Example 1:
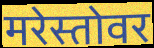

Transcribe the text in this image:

मरेस्तोवर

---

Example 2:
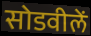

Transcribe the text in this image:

सोडवीलें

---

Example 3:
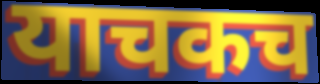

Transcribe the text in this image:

याचकच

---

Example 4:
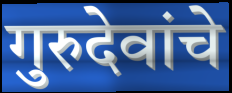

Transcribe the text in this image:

गुरुदेवांचे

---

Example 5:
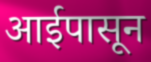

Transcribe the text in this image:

आईपासून